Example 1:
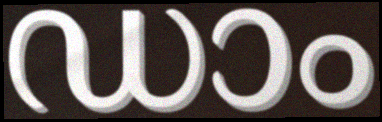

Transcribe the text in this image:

ഡാം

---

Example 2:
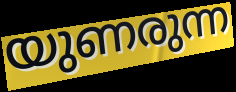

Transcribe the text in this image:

യുണരുന്ന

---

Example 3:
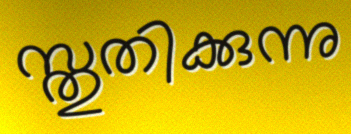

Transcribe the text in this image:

സ്തുതിക്കുന്നു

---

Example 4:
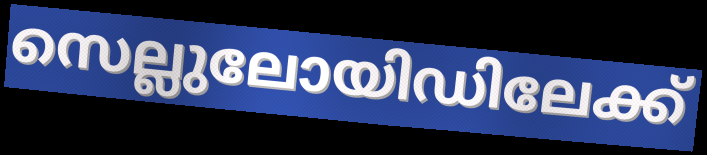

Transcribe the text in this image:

സെല്ലുലോയിഡിലേക്ക്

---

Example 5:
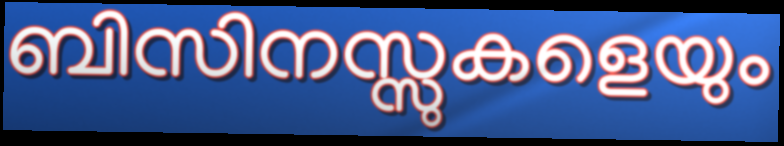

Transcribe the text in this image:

ബിസിനസ്സുകളെയും